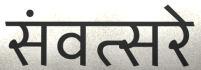
संवत्सरे